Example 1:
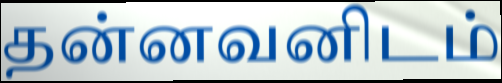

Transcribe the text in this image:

தன்னவனிடம்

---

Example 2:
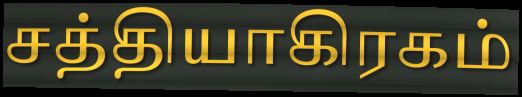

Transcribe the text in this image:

சத்தியாகிரகம்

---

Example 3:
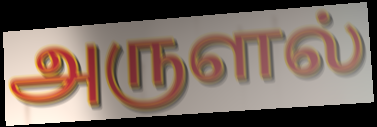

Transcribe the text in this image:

அருளல்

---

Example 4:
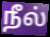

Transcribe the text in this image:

நீல்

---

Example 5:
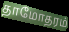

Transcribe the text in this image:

தாமோதரம்